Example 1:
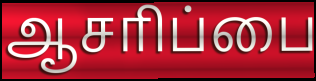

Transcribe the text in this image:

ஆசரிப்பை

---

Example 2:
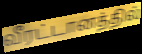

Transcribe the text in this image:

வீரட்டானத்தில்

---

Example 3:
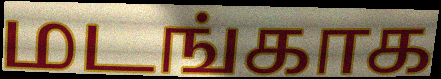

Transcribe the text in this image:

மடங்காக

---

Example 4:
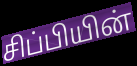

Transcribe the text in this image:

சிப்பியின்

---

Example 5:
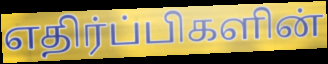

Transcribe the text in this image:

எதிர்ப்பிகளின்